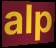
alp